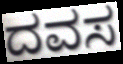
ದವಸ